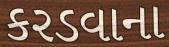
કરડવાના